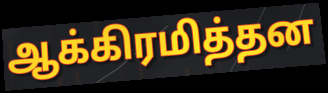
ஆக்கிரமித்தன